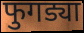
फुगड्या